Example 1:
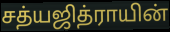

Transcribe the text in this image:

சத்யஜித்ராயின்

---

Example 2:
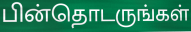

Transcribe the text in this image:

பின்தொடருங்கள்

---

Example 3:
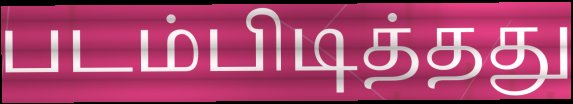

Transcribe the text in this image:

படம்பிடித்தது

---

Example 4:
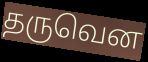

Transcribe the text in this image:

தருவென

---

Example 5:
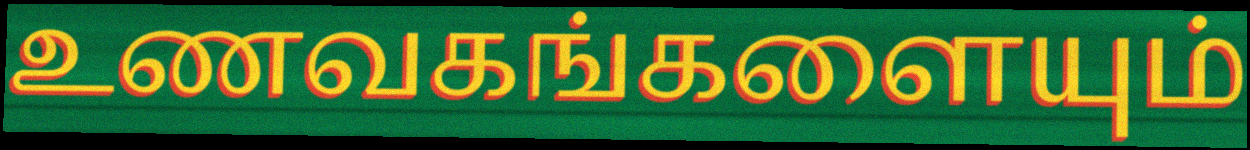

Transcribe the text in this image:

உணவகங்களையும்